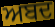
ਅਬਦ